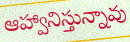
ఆహ్వానిస్తున్నావు